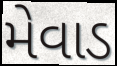
મેવાડ